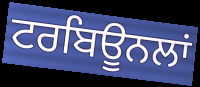
ਟਰਬਿਊਨਲਾਂ